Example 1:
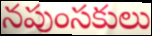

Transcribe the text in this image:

నపుంసకులు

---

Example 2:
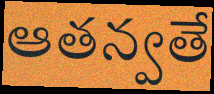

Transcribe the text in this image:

ఆతన్వతే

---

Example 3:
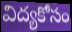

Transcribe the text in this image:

విద్యకోసం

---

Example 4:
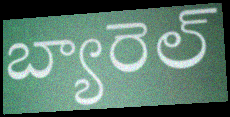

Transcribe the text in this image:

బ్యారెల్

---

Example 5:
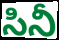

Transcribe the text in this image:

సినీ